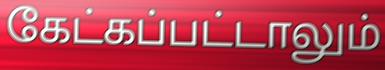
கேட்கப்பட்டாலும்